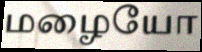
மழையோ